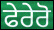
ਫੇਰੇਰੋ